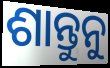
ଶାନ୍ତୁନୁ